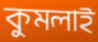
কুমলাই